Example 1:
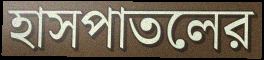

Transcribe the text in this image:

হাসপাতলের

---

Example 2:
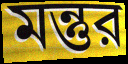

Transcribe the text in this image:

মন্তুর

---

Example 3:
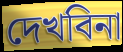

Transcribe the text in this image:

দেখবিনা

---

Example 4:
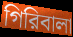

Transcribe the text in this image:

গিরিবালা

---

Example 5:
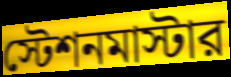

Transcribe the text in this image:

স্টেশনমাস্টার